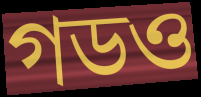
গডও